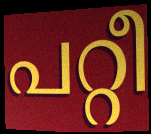
പറ്റീ